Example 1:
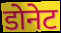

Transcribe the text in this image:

डोनेट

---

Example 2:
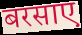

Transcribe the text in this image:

बरसाए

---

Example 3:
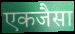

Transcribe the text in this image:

एकजैसा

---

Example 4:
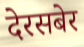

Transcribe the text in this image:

देरसबेर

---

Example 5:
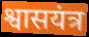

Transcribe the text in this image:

श्वासयंत्र